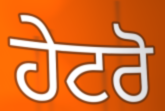
ਹੇਟਰੋ